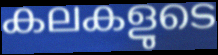
കലകളുടെ